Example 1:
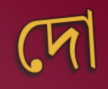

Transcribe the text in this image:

দো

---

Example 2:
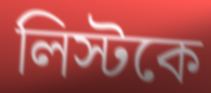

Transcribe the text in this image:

লিস্টকে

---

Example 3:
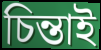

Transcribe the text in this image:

চিন্তাই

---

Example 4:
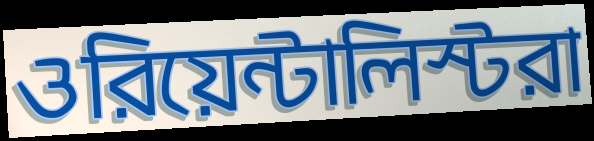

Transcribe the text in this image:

ওরিয়েন্টালিস্টরা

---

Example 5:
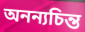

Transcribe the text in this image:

অনন্যচিন্ত